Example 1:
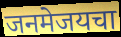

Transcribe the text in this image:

जनमेजयचा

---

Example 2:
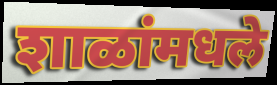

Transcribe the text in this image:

शाळांमधले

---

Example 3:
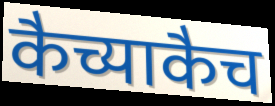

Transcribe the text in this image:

कैच्याकैच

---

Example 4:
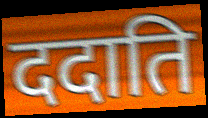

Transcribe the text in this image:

ददाति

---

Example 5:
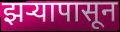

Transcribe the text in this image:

झऱ्यापासून